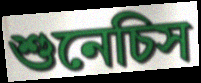
শুনেচিস